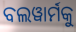
ବଲୱାର୍ମକୁ